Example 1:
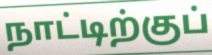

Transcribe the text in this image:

நாட்டிற்குப்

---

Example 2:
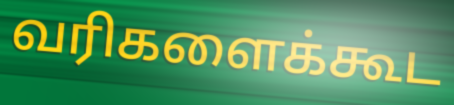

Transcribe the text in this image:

வரிகளைக்கூட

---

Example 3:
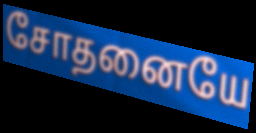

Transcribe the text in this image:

சோதனையே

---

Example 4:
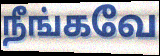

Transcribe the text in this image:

நீங்கவே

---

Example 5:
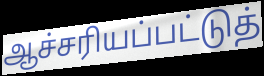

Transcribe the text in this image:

ஆச்சரியப்பட்டுத்